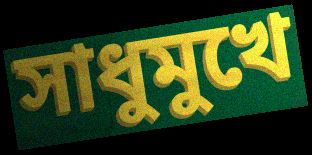
সাধুমুখে